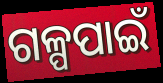
ଗଳ୍ପପାଇଁ